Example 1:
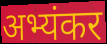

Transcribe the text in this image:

अभ्यंकर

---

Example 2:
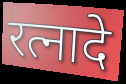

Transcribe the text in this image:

रत्नादे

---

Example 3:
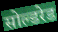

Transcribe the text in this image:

सोल्डरेड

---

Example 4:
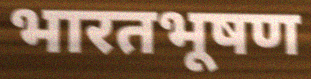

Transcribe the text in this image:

भारतभूषण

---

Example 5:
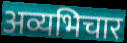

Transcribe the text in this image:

अव्यभिचार